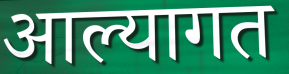
आल्यागत